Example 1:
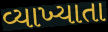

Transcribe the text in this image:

વ્યાખ્યાતા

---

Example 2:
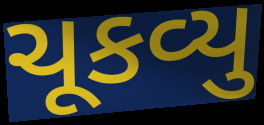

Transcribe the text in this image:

ચૂકવ્યુ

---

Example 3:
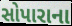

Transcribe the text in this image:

સોપારાના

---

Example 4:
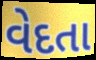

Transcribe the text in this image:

વેદતા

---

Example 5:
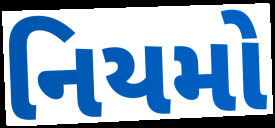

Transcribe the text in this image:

નિયમો